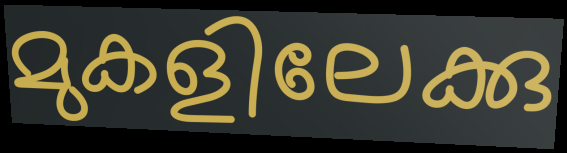
മുകളിലേക്കു